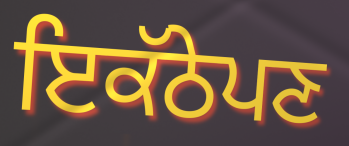
ਇਕੱਠੇਪਣ